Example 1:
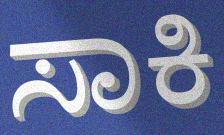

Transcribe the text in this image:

ಸಾಕಿ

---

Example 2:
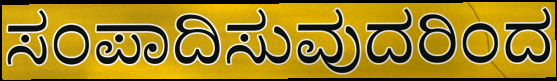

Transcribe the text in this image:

ಸಂಪಾದಿಸುವುದರಿಂದ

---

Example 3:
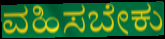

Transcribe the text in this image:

ವಹಿಸಬೇಕು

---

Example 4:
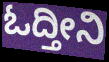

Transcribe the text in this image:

ಓದ್ತೀನಿ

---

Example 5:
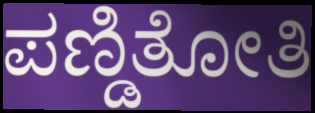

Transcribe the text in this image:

ಪಣ್ಡಿತೋತಿ